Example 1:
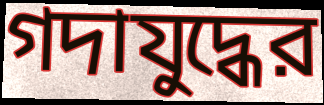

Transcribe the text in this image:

গদাযুদ্ধের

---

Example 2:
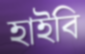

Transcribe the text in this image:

হাইবি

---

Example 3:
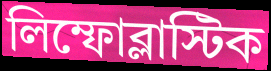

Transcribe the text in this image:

লিম্ফোব্লাস্টিক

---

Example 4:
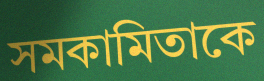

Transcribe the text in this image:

সমকামিতাকে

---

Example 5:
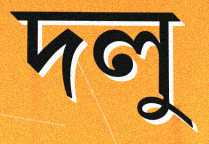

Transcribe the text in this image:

দলু